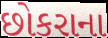
છોકરાના